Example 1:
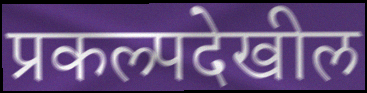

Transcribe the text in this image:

प्रकल्पदेखील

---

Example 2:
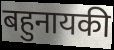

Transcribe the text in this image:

बहुनायकी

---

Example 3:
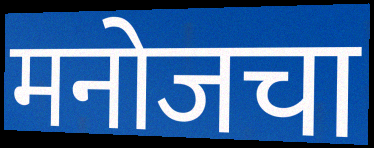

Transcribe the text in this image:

मनोजचा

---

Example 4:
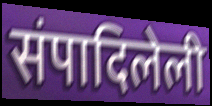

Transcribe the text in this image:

संपादिलेली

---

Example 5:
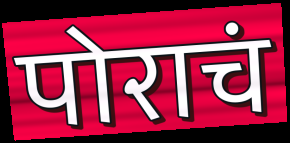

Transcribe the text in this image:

पोराचं